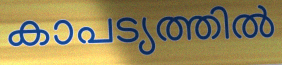
കാപട്യത്തിൽ